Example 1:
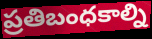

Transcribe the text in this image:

ప్రతిబంధకాల్ని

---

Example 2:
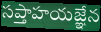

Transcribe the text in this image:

సప్తాహయజ్ఞేన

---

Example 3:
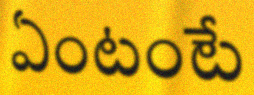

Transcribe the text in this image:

ఏంటంటే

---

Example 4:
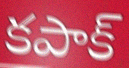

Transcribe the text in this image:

కపాక్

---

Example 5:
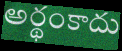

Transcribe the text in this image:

అర్థంకాదు